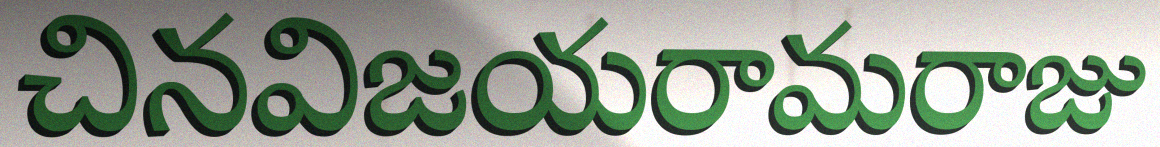
చినవిజయరామరాజు